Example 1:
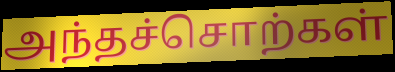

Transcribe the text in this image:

அந்தச்சொற்கள்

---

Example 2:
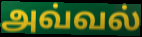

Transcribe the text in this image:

அவ்வல்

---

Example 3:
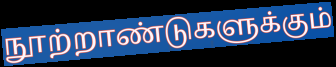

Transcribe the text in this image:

நூற்றாண்டுகளுக்கும்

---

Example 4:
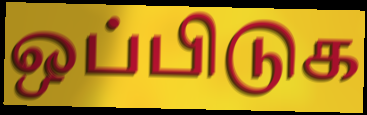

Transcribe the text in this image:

ஒப்பிடுக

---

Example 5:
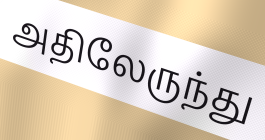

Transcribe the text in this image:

அதிலேருந்து